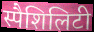
स्पैशिलिटी